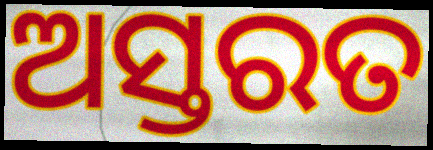
ଅସ୍ତରତ